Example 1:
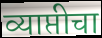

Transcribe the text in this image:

व्याप्तीचा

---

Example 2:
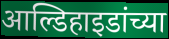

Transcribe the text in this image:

आल्डिहाइडांच्या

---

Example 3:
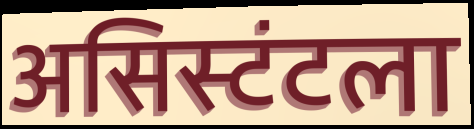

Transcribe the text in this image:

असिस्टंटला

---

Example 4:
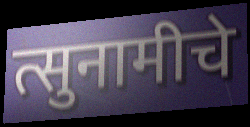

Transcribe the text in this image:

त्सुनामीचे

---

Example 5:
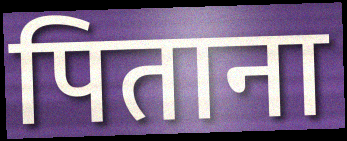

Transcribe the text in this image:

पिताना